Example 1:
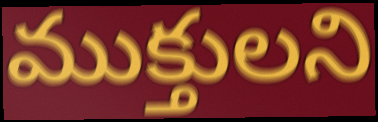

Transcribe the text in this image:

ముక్తులని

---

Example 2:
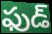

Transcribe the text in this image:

ఫుడ్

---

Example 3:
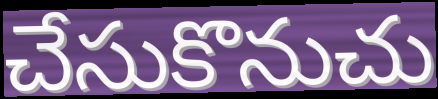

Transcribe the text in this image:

చేసుకొనుచు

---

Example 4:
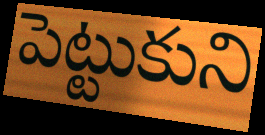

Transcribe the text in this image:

పెట్టుకుని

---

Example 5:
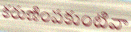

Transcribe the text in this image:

కరుణింపకుంటివా